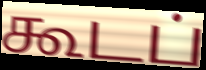
கூடப்